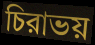
চিরাভয়